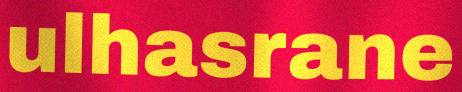
ulhasrane